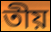
তীয়